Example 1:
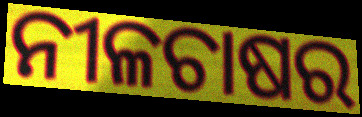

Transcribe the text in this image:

ନୀଳଚାଷର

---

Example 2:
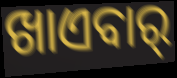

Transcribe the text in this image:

ଖାଏବାର୍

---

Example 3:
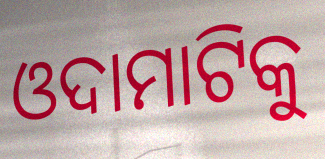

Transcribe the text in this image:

ଓଦାମାଟିକୁ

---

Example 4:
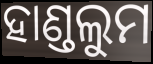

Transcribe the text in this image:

ହାଣ୍ଡଲୁମ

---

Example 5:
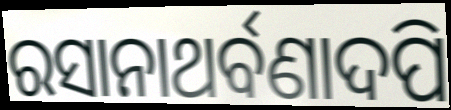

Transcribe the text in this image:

ରସାନାଥର୍ବଣାଦପି